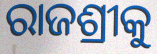
ରାଜଶ୍ରୀକୁ